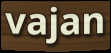
vajan